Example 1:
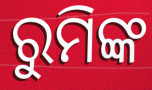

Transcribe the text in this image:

ରୁମିଙ୍କ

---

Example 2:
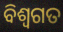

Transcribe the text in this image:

ବିଶ୍ଵଗତ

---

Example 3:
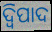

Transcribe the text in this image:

ଦ୍ୱିପାଦ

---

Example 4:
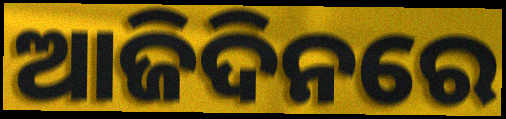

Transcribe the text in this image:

ଆଜିଦିନରେ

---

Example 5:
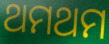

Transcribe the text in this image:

ଥମଥମ